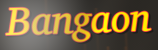
Bangaon